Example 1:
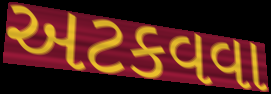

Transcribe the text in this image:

અટકવવા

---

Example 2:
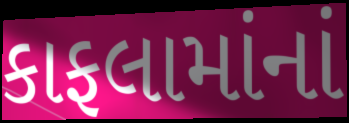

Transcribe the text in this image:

કાફલામાંનાં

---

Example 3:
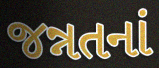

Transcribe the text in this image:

જન્નતનાં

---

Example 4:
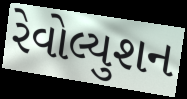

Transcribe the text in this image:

રેવોલ્યુશન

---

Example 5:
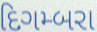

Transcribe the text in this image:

દિગમ્બરા